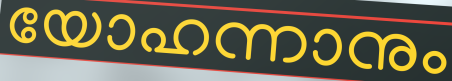
യോഹന്നാനും